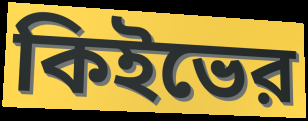
কিইভের